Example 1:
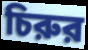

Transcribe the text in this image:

চিরুর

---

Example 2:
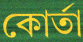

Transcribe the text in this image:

কোর্তা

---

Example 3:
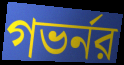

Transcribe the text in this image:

গভর্নর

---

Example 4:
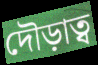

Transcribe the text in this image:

দৌড়াত্ব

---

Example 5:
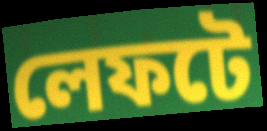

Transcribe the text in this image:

লেফটে